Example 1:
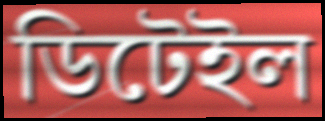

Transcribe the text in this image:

ডিটেইল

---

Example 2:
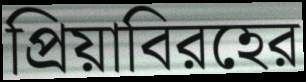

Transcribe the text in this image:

প্রিয়াবিরহের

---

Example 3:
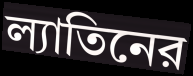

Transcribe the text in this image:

ল্যাতিনের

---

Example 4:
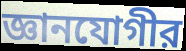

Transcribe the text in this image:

জ্ঞানযোগীর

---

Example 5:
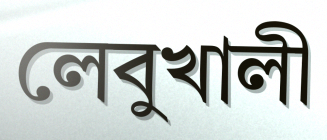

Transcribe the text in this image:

লেবুখালী